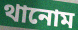
থানোম